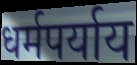
धर्मपर्याय